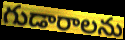
గుడారాలను